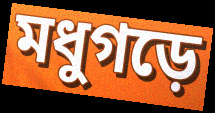
মধুগড়ে